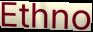
Ethno